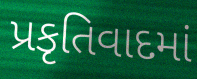
પ્રકૃતિવાદમાં